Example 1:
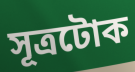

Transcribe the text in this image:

সূত্ৰটোক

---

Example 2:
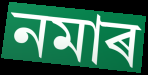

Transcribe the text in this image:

নমাৰ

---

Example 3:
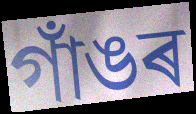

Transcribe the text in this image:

গাঁঙৰ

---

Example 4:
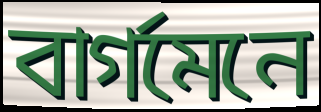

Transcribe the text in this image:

বাৰ্গমেনে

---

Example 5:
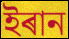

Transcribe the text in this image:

ইৰান